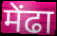
मेंढा